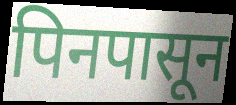
पिनपासून